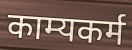
काम्यकर्म